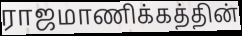
ராஜமாணிக்கத்தின்